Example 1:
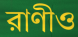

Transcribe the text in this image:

রাণীও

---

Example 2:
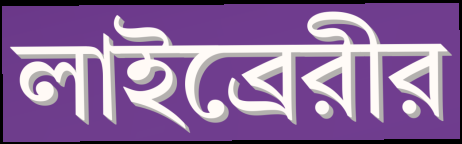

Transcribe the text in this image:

লাইব্রেরীর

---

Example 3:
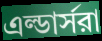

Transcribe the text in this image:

এল্ডার্সরা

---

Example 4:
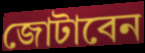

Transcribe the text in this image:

জোটাবেন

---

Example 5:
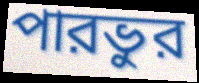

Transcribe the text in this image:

পারভুর